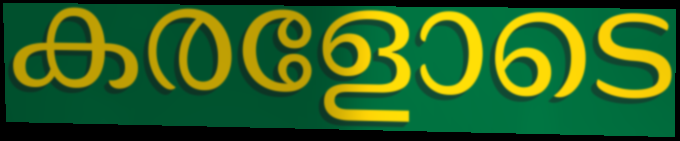
കരളോടെ